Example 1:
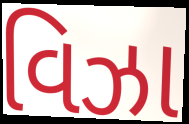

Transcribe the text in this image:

વિઝા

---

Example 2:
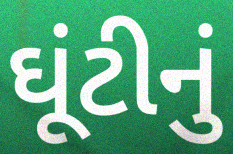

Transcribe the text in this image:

ઘૂંટીનું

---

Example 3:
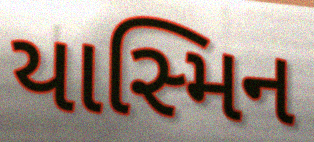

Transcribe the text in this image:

યાસ્મિન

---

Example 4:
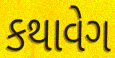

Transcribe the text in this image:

કથાવેગ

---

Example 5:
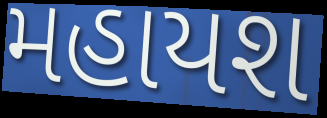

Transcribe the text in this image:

મહાયશ